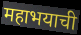
महाभयाची